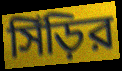
সিঁড়ির